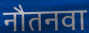
नौतनवा